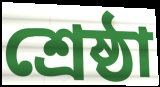
শ্রেষ্ঠা